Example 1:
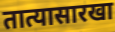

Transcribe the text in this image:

तात्यासारखा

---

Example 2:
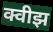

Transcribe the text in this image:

क्वीझ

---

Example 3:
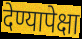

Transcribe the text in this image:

देण्यापेक्षा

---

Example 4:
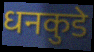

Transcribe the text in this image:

धनकुडे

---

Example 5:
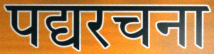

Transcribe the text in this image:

पद्यरचना